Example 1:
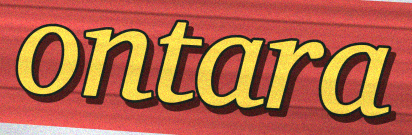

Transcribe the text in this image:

ontara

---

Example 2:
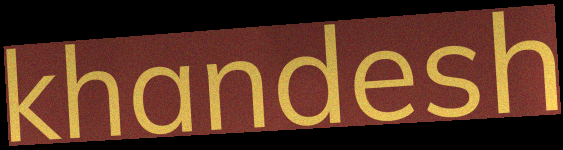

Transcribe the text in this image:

khandesh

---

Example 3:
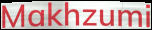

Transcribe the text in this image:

Makhzumi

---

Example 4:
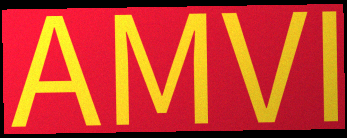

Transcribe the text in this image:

AMVI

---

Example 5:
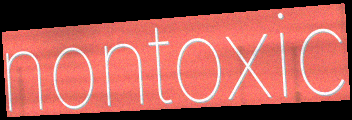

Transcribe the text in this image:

nontoxic